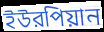
ইউরপিয়ান